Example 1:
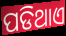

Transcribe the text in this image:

ପଡିଥାଏ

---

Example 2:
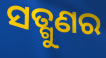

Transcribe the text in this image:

ସତ୍ଗୁଣର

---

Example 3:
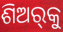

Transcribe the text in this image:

ଶିଅର୍‌କୁ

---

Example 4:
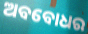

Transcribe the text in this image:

ଅବବୋଧର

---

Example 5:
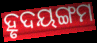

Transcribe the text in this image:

ହୃଦୟଙ୍ଗମ